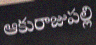
ఆకురాజుపల్లి